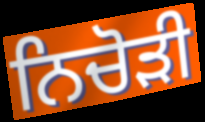
ਨਿਚੋੜੀ